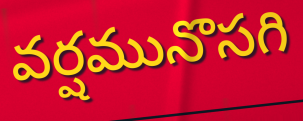
వర్షమునొసగి